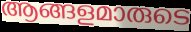
ആങ്ങളമാരുടെ